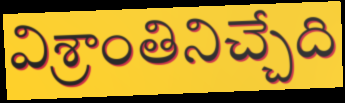
విశ్రాంతినిచ్చేది